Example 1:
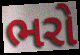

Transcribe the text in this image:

ભરો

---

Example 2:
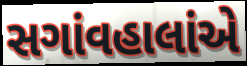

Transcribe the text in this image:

સગાંવહાલાંએ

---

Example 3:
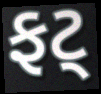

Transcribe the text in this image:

ફટ્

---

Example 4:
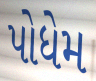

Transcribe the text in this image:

પોધેમ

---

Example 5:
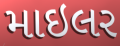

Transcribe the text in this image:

માઇલર